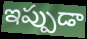
ఇప్పుడా